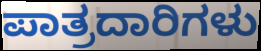
ಪಾತ್ರದಾರಿಗಳು